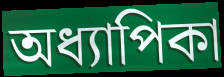
অধ্যাপিকা